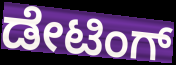
ಡೇಟಿಂಗ್